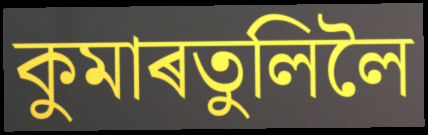
কুমাৰতুলিলৈ